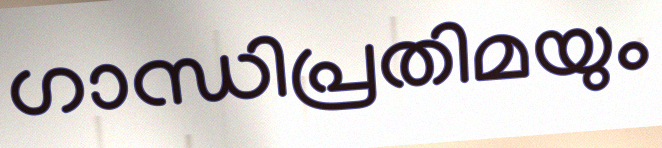
ഗാന്ധിപ്രതിമയും